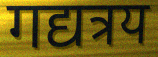
गद्यत्रय